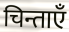
चिन्ताएँ